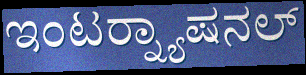
ಇಂಟರ್‍ನ್ಯಾಷನಲ್